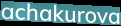
achakurova